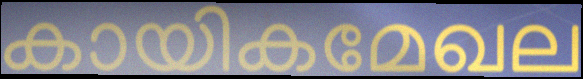
കായികമേഖല